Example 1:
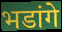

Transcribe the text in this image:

भडांगे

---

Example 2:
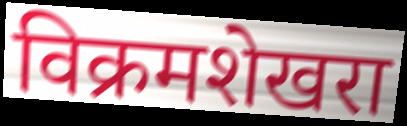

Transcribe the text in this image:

विक्रमशेखरा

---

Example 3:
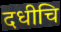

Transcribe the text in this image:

दधीचि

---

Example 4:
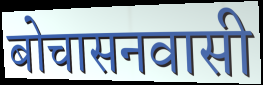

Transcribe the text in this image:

बोचासनवासी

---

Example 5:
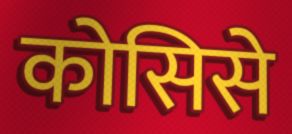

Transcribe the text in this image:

कोसिसे